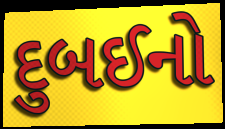
દુબઈનો